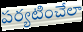
పర్యటించేలా